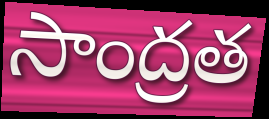
సాంద్రత